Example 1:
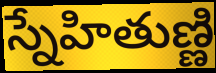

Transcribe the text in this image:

స్నేహితుణ్ణి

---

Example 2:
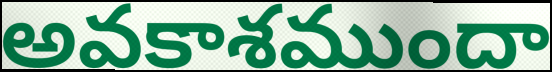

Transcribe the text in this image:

అవకాశముందా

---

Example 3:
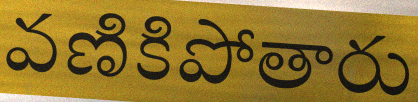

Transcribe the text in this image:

వణికిపోతారు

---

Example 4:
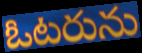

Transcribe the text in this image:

ఓటరును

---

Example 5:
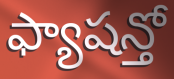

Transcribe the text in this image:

ఫ్యాషన్తో